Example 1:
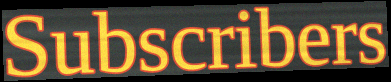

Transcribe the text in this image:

Subscribers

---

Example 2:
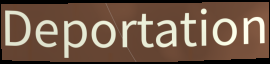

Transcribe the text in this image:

Deportation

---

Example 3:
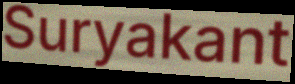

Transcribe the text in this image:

Suryakant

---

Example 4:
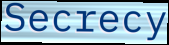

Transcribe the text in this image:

Secrecy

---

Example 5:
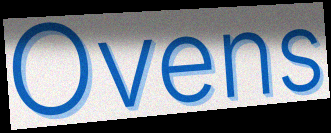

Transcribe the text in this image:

Ovens